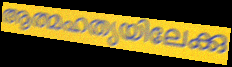
ആത്മഹത്യയിലേക്കു